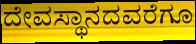
ದೇವಸ್ಥಾನದವರೆಗೂ